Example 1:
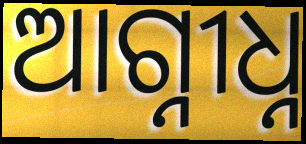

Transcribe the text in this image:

ଆଗ୍ନୀଧ୍ନ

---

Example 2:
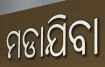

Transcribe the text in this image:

ମଡାଯିବା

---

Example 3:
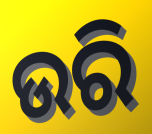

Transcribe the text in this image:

ଉରି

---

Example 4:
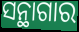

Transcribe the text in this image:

ସନ୍ଥାଗାର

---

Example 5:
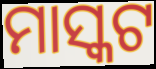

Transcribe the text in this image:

ମାସ୍କଟ